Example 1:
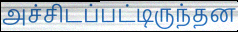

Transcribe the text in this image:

அச்சிடப்பட்டிருந்தன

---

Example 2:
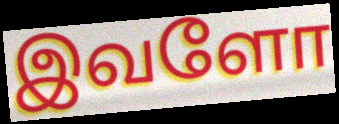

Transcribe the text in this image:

இவளோ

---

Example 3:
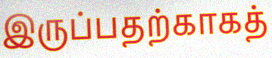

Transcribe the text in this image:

இருப்பதற்காகத்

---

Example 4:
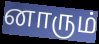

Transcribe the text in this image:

னாரும்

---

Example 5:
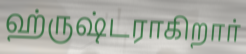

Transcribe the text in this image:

ஹ்ருஷ்டராகிறார்